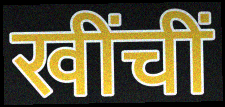
खींचीं